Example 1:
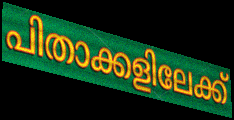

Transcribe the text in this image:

പിതാക്കളിലേക്ക്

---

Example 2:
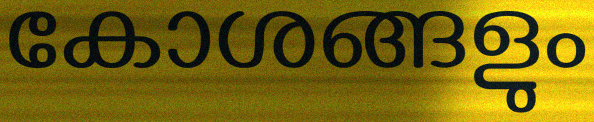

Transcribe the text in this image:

കോശങ്ങളും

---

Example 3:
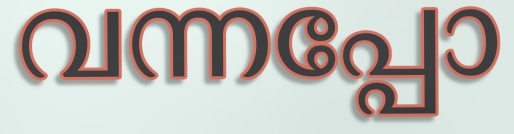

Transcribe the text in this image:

വന്നപ്പോ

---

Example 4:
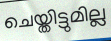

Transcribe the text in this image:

ചെയ്തിട്ടുമില്ല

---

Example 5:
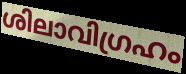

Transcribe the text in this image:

ശിലാവിഗ്രഹം